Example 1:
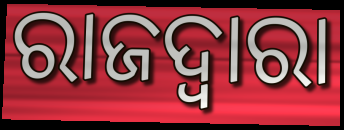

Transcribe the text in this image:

ରାଜଦ୍ୱାରା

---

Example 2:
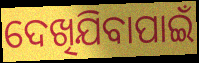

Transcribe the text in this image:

ଦେଖିଯିବାପାଇଁ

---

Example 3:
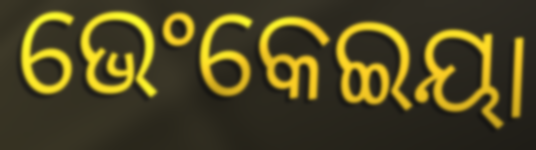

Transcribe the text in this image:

ଭେଂକେଇୟା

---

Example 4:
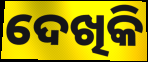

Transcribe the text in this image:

ଦେଖିକି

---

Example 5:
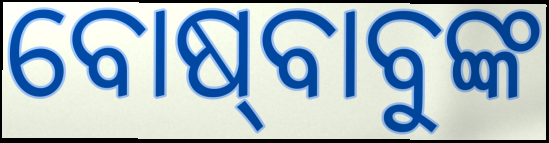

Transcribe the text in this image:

ବୋଷ୍‍ବାବୁଙ୍କ